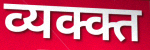
व्यक्क्त